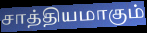
சாத்தியமாகும்